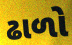
ઢાળો